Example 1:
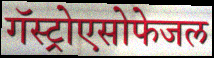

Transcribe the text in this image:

गॅस्ट्रोएसोफेजल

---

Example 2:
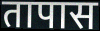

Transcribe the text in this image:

तापास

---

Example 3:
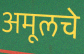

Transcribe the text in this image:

अमूलचे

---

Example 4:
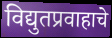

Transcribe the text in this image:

विद्युतप्रवाहाचे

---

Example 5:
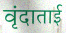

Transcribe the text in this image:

वृंदाताई